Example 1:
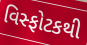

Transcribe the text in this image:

વિસ્ફોટકથી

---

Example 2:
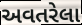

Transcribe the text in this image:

અવતરેલા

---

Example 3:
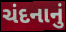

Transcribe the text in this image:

ચંદનાનું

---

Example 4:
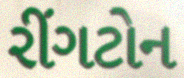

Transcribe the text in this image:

રીંગટોન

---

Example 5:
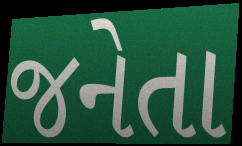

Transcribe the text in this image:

જનેતા